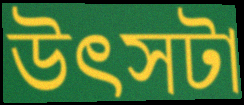
উৎসটা